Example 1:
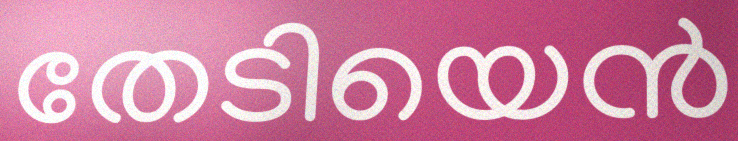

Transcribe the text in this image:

തേടിയെൻ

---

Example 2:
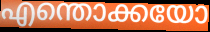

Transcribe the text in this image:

എന്തൊക്കയോ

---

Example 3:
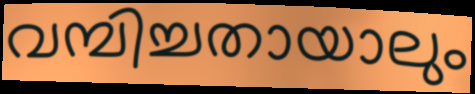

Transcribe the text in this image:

വമ്പിച്ചതായാലും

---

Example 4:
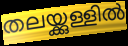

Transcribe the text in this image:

തലയ്ക്കുള്ളിൽ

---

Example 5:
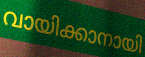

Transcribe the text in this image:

വായിക്കാനായി